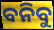
ବନିବୁ